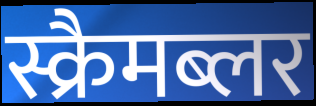
स्क्रैमब्लर